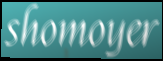
shomoyer